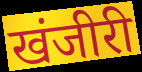
खंजीरी